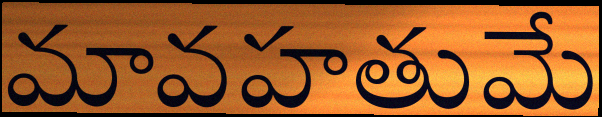
మావహతుమే